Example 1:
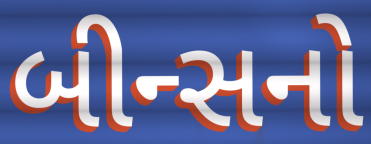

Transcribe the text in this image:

બીન્સનો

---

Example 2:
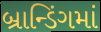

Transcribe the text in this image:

બ્રાન્ડિંગમાં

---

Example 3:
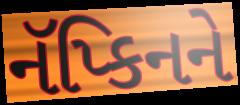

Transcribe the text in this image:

નૅપ્કિનને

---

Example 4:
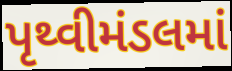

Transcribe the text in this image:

પૃથ્વીમંડલમાં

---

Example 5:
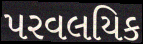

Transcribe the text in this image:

પરવલયિક